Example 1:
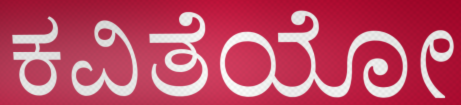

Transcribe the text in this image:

ಕವಿತೆಯೋ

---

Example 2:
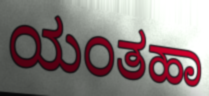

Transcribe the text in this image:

ಯಂತಹಾ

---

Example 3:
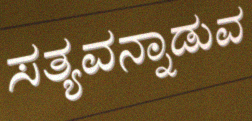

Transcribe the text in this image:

ಸತ್ಯವನ್ನಾಡುವ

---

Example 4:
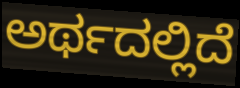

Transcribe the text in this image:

ಅರ್ಥದಲ್ಲಿದೆ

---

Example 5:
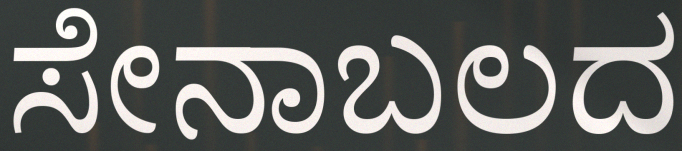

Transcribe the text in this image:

ಸೇನಾಬಲದ